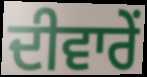
ਦੀਵਾਰੇਂ